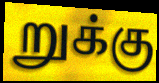
றுக்கு